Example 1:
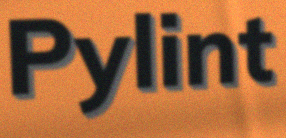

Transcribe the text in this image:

Pylint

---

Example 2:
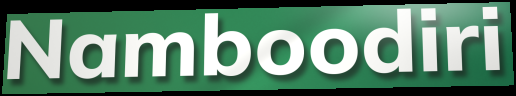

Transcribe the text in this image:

Namboodiri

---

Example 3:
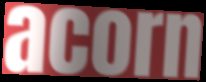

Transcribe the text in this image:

acorn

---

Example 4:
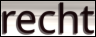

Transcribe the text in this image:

recht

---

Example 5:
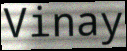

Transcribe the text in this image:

Vinay